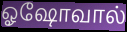
ஓஷோவால்